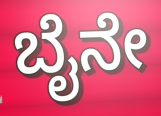
ಬೈನೇ